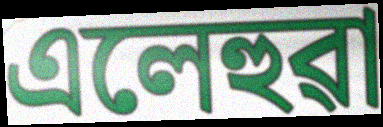
এলেহুৱা